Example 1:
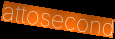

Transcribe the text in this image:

attosecond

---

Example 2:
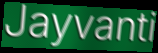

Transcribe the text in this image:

Jayvanti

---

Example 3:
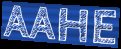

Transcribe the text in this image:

AAHE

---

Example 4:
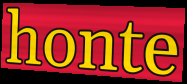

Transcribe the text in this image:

honte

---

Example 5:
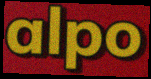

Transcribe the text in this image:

alpo